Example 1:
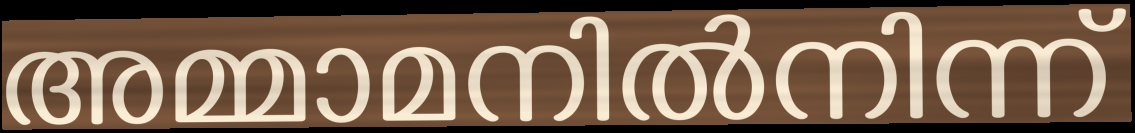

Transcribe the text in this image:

അമ്മാമനിൽനിന്ന്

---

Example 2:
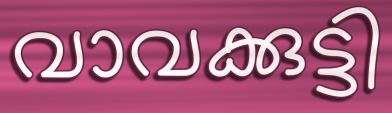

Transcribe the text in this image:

വാവക്കുട്ടി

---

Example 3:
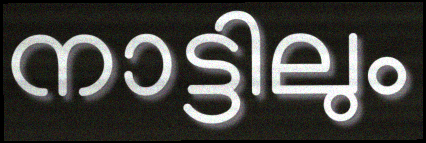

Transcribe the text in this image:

നാട്ടിലും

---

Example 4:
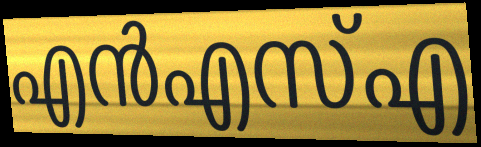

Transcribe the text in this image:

എൻഎസ്എ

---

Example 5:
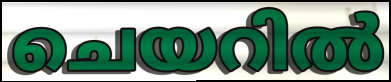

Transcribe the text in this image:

ചെയറിൽ